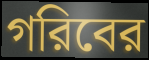
গরিবের